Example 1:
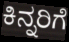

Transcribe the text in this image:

ಕಿನ್ನರಿಗೆ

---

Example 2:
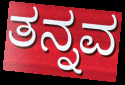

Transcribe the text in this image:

ತನ್ನವ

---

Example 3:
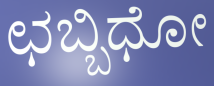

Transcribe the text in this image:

ಛಬ್ಬಿಧೋ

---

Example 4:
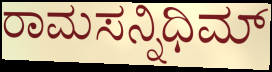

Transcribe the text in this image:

ರಾಮಸನ್ನಿಧಿಮ್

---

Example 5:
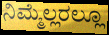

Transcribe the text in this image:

ನಿಮ್ಮೆಲ್ಲರಲ್ಲೂ